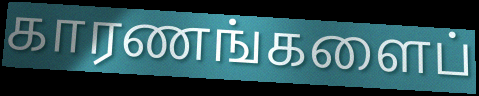
காரணங்களைப்